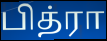
பித்ரா